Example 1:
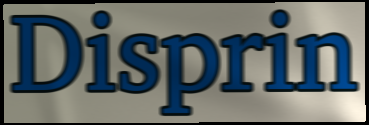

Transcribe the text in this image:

Disprin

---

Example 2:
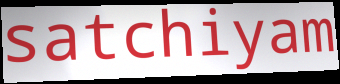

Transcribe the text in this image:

satchiyam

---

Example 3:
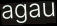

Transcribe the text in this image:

agau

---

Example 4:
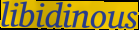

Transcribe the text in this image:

libidinous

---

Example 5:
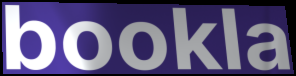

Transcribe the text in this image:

bookla